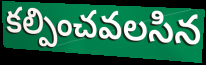
కల్పించవలసిన